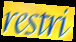
restri